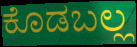
ಕೊಡಬಲ್ಲ